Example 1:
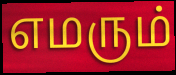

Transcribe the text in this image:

எமரும்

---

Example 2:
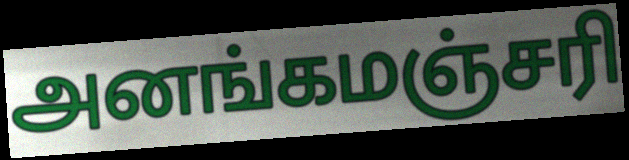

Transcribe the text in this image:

அனங்கமஞ்சரி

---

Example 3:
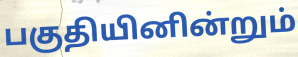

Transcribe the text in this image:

பகுதியினின்றும்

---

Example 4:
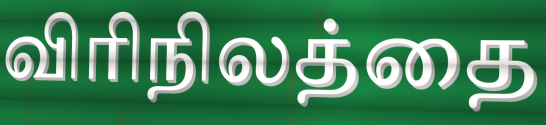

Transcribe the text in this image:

விரிநிலத்தை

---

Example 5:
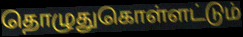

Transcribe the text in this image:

தொழுதுகொள்ளட்டும்